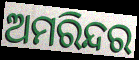
ଅମରିନ୍ଦର